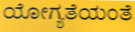
ಯೋಗ್ಯತೆಯಂತೆ